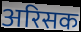
अरिसक